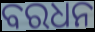
ବରଧନ